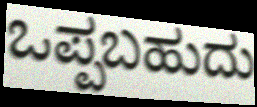
ಒಪ್ಪಬಹುದು